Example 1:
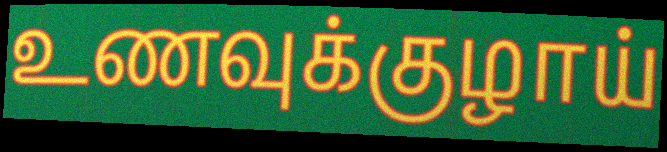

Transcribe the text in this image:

உணவுக்குழாய்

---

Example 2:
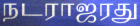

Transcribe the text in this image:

நடராஜரது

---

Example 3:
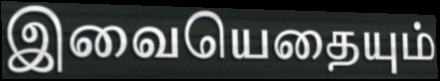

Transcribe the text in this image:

இவையெதையும்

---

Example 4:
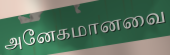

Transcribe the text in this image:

அனேகமானவை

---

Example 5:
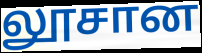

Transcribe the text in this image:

லூசான